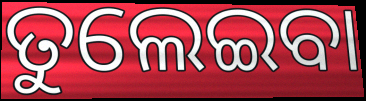
ତୁଲେଇବା